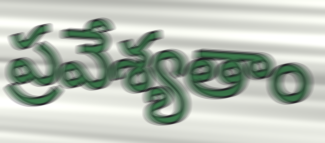
ప్రవేశ్యతాం